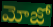
మోజో